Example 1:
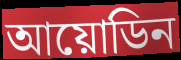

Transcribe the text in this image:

আয়োডিন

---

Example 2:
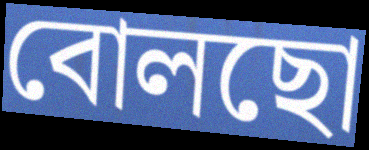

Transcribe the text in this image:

বোলছো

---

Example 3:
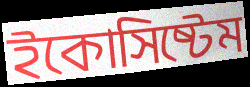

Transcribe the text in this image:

ইকোসিষ্টেম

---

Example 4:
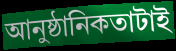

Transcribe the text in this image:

আনুষ্ঠানিকতাটাই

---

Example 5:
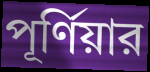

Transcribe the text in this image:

পূর্ণিয়ার